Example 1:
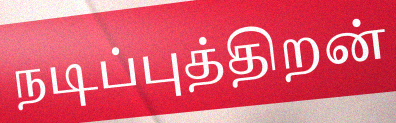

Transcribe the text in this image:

நடிப்புத்திறன்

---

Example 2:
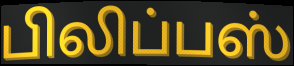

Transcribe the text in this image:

பிலிப்பஸ்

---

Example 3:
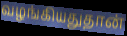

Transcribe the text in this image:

வழங்கியதுதான்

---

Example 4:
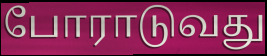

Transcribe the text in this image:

போராடுவது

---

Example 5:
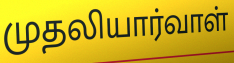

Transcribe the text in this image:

முதலியார்வாள்